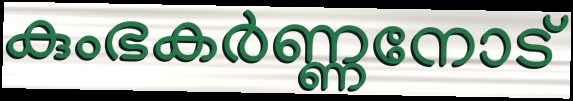
കുംഭകർണ്ണനോട്